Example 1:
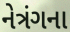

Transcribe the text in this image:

નેત્રંગના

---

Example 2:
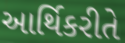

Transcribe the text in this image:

આર્થિકરીતે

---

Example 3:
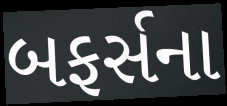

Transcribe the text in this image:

બફર્સના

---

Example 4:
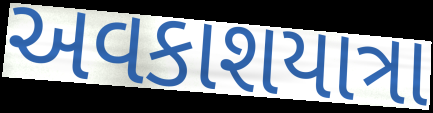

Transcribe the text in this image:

અવકાશયાત્રા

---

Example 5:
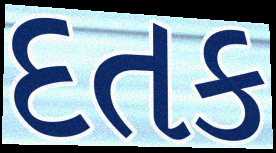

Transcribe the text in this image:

દતક